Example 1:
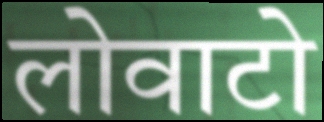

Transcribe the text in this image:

लोवाटो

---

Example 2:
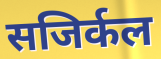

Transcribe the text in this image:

सजिर्कल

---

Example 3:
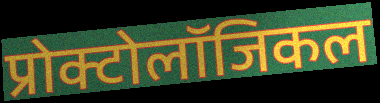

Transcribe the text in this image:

प्रोक्टोलॉजिकल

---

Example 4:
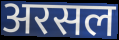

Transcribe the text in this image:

अरसल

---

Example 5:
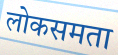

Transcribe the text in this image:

लोकसमता